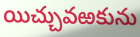
యిచ్చువఱకును